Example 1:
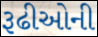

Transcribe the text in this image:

રૂઢીઓની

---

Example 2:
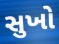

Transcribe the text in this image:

સુખો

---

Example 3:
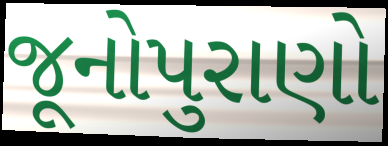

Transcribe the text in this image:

જૂનોપુરાણો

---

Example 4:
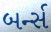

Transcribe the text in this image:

બર્ન્સ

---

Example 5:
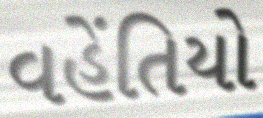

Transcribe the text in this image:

વહેંતિયો